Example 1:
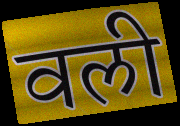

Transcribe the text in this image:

वली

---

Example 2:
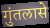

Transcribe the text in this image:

गुंतलासे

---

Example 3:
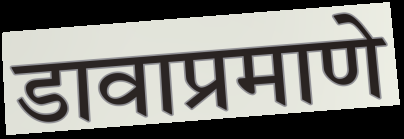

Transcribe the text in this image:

डावाप्रमाणे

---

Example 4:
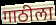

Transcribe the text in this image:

गाठीला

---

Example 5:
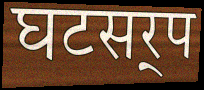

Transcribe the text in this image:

घटसर्प